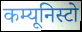
कम्यूनिस्टो